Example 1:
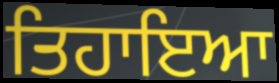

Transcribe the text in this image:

ਤਿਹਾਇਆ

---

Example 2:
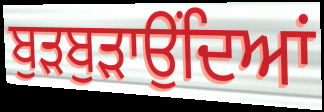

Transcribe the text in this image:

ਬੁੜਬੁੜਾਉਂਦਿਆਂ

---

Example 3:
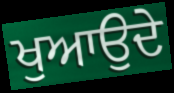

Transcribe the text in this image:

ਖੁਆਉਦੇ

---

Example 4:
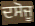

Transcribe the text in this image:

ਦਸੋਜੂ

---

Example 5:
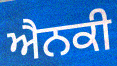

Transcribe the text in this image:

ਐਨਕੀ